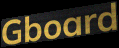
Gboard